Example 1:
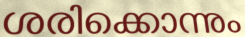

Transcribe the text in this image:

ശരിക്കൊന്നും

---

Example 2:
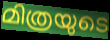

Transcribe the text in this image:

മിത്രയുടെ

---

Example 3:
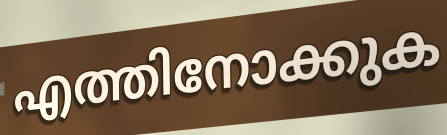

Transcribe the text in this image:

എത്തിനോക്കുക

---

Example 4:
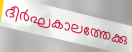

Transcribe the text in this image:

ദീർഘകാലത്തേക്കു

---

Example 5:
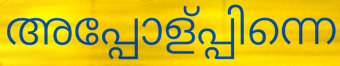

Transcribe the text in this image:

അപ്പോള്പ്പിന്നെ